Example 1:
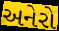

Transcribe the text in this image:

અનેરો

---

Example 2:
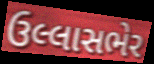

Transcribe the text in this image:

ઉલ્લાસભેર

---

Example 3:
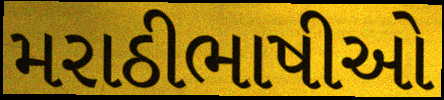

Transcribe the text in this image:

મરાઠીભાષીઓ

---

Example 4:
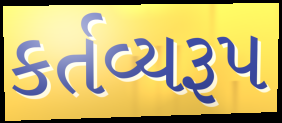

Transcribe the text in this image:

કર્તવ્યરૂપ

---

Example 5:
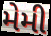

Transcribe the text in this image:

મેમી